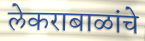
लेकराबाळांचे